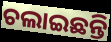
ଚଲାଇଛନ୍ତି